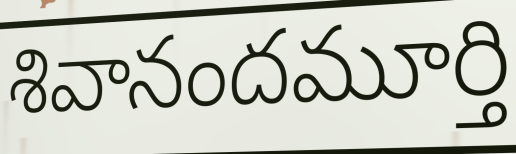
శివానందమూర్తి